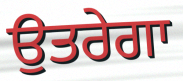
ਉਤਰੇਗਾ